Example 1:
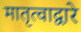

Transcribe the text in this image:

मातृत्वाद्वारे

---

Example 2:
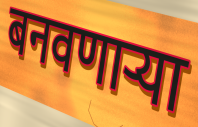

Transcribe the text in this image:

बनवणार्‍या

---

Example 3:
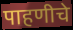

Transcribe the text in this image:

पाहणीचे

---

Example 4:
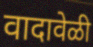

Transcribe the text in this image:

वादावेळी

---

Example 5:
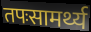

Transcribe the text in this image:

तपःसामर्थ्य